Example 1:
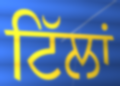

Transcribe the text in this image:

ਟਿੱਲਾਂ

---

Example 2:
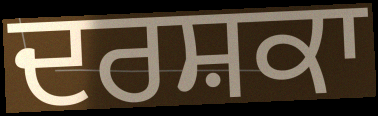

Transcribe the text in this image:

ਦਰਸ਼ਕਾ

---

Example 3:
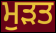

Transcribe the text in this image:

ਮੁੜਤ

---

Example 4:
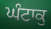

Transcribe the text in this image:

ਘੰਟਾਕੁ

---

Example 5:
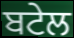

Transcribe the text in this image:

ਬਟੇਲ